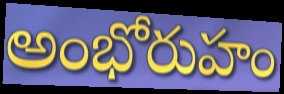
అంభోరుహం